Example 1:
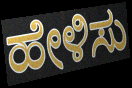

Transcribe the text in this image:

ಹೇಳಿಸು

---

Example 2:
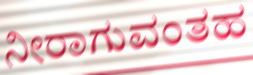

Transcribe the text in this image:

ನೀರಾಗುವಂತಹ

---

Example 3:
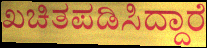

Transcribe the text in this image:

ಖಚಿತಪಡಿಸಿದ್ದಾರೆ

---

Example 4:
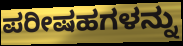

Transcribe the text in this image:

ಪರೀಷಹಗಳನ್ನು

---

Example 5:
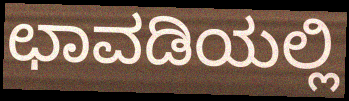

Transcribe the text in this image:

ಛಾವಡಿಯಲ್ಲಿ